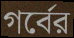
গর্বের